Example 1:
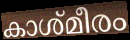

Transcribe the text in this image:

കാശ്മീരം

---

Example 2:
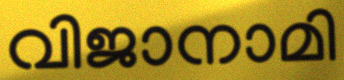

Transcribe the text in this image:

വിജാനാമി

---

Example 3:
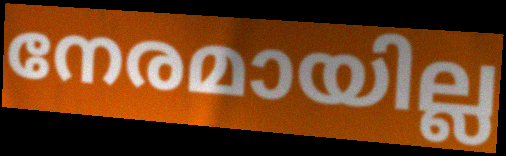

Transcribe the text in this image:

നേരമായില്ല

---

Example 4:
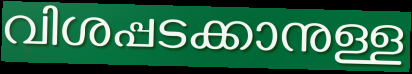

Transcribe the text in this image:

വിശപ്പടക്കാനുള്ള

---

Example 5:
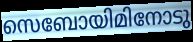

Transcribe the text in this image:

സെബോയിമിനോടു